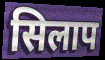
सिलाप